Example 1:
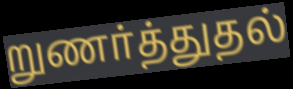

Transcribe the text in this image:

றுணர்த்துதல்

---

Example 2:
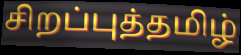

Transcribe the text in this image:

சிறப்புத்தமிழ்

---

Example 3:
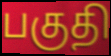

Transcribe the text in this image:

பகுதி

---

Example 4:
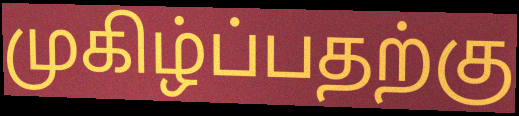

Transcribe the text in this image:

முகிழ்ப்பதற்கு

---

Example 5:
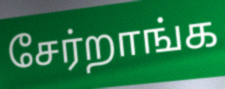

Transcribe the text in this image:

சேர்றாங்க